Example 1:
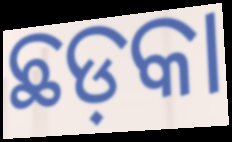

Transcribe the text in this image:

ଛଡ଼କା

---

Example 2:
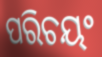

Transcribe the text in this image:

ପରିଚୟଂ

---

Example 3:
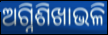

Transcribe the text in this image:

ଅଗ୍ନିଶିଖାଭଳି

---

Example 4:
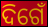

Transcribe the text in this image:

ଦିଗେଁ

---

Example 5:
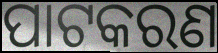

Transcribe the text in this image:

ପାଟକରଣ